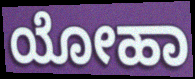
ಯೋಹಾ